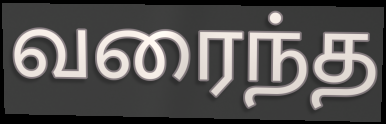
வரைந்த